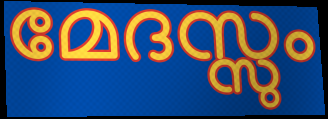
മേദസ്സും